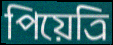
পিয়েত্রি